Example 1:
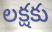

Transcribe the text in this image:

లక్షకు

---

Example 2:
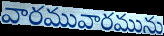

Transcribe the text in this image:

వారమువారమును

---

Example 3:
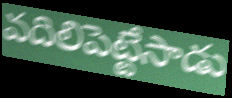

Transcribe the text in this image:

వదిలిపెట్టేసాడు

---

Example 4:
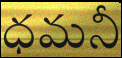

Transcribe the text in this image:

ధమనీ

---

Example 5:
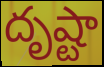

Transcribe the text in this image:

దృష్టా